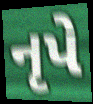
નૃપે